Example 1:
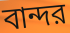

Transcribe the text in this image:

বান্দর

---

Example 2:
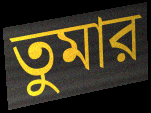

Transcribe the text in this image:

তুমার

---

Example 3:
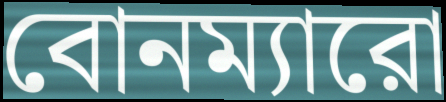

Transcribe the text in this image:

বোনম্যারো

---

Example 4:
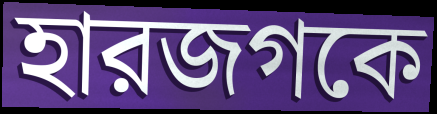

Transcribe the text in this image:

হারজগকে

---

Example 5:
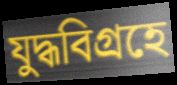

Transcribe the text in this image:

যুদ্ধবিগ্রহে